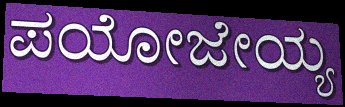
ಪಯೋಜೇಯ್ಯ